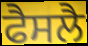
ਫੈਸਲੈ